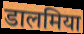
डालमिया